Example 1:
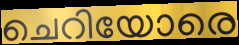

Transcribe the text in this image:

ചെറിയോരെ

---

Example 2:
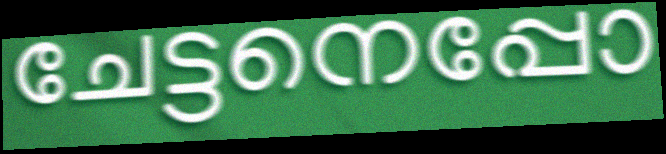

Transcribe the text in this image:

ചേട്ടനെപ്പോ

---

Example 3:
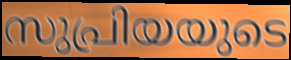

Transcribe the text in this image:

സുപ്രിയയുടെ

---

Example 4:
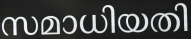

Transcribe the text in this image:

സമാധിയതി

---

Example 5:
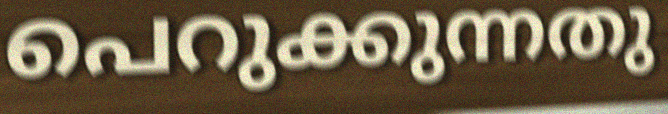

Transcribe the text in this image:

പെറുക്കുന്നതു